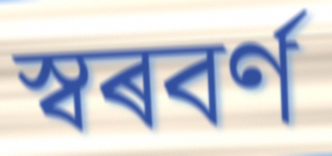
স্বৰবৰ্ণ